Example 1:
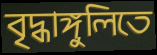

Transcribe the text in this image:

বৃদ্ধাঙ্গুলিতে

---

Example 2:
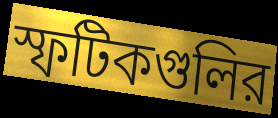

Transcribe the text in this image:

স্ফটিকগুলির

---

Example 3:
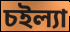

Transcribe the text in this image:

চইল্যা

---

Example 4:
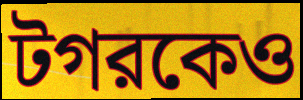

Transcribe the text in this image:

টগরকেও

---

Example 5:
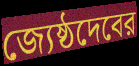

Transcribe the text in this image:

জ্যেষ্ঠদেবের